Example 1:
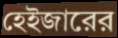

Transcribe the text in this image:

হেইজারের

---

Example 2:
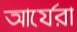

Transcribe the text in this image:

আর্যেরা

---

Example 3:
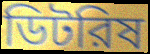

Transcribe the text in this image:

ডিটরিষ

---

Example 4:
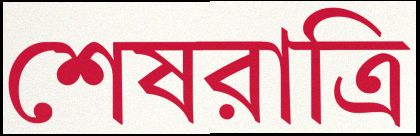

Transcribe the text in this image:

শেষরাত্রি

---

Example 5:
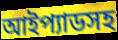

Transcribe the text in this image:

আইপ্যাডসহ